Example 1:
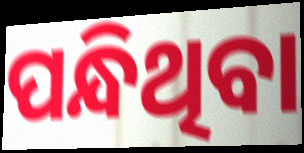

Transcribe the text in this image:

ପନ୍ଧିଥିବା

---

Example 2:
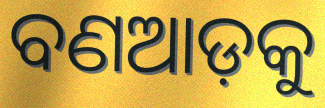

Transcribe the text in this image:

ବଣଆଡ଼କୁ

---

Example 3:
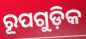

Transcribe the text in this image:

ରୂପଗୁଡ଼ିକ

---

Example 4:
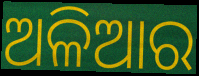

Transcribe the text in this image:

ଅଳିଆର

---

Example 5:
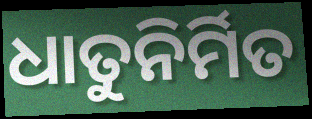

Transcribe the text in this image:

ଧାତୁନିର୍ମିତ